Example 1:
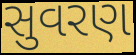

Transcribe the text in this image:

સુવરણ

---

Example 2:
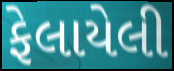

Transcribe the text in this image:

ફેલાયેલી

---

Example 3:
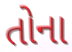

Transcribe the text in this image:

તોના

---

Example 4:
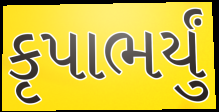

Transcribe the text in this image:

કૃપાભર્યું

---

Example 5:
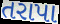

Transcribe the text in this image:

તરાપા